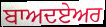
ਬਾਅਦਏਅਰ